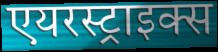
एयरस्ट्राइक्स